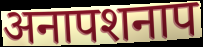
अनापशनाप